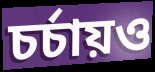
চর্চায়ও